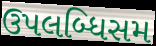
ઉપલબ્ધિસમ